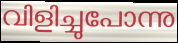
വിളിച്ചുപോന്നു